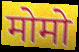
मोमो